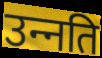
उन्‍नति